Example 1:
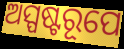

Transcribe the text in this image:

ଅସ୍ପଷ୍ଟରୂପେ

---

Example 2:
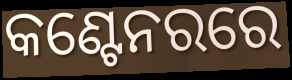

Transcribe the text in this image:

କଣ୍ଟେନରରେ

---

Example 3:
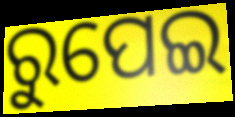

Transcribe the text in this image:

ରୁପେଇ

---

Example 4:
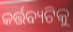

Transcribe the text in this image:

କର୍ତ୍ତବ୍ୟଟିକୁ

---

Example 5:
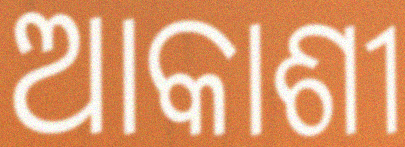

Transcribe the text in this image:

ଆକାଶୀ